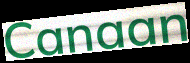
Canaan